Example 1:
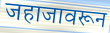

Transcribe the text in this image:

जहाजावरून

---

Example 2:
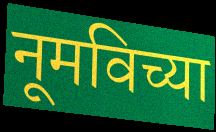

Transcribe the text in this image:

नूमविच्या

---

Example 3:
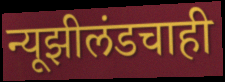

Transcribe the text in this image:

न्यूझीलंडचाही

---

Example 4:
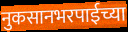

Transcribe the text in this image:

नुकसानभरपाईच्या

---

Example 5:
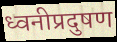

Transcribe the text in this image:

ध्वनीप्रदुषण